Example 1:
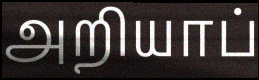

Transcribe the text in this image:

அறியாப்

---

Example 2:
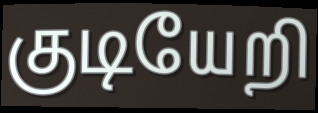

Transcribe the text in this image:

குடியேறி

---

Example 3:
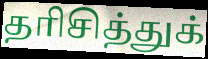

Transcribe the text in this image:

தரிசித்துக்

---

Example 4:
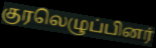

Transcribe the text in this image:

குரலெழுப்பினர்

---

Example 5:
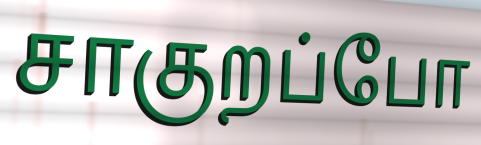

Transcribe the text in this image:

சாகுறப்போ